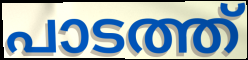
പാടത്ത്